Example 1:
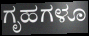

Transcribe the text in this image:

ಗೃಹಗಳೂ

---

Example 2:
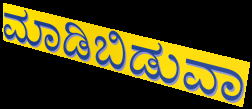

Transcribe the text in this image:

ಮಾಡಿಬಿಡುವಾ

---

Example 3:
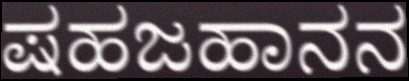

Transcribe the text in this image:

ಷಹಜಹಾನನ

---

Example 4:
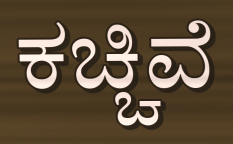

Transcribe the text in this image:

ಕಚ್ಚಿವೆ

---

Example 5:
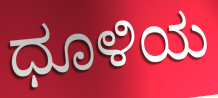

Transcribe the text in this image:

ಧೂಳಿಯ